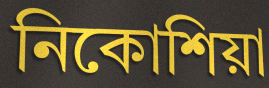
নিকোশিয়া